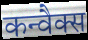
कन्वैक्स